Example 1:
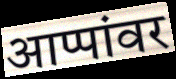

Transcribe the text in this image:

आप्पांवर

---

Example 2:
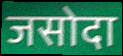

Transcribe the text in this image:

जसोदा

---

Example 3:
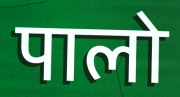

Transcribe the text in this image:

पालो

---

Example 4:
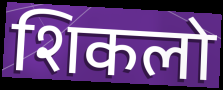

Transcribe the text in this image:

शिकलो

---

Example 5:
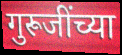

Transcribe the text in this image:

गुरूजींच्या